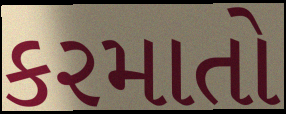
કરમાતો